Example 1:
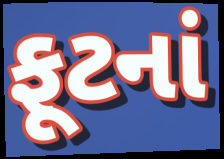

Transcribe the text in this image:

ફૂટનાં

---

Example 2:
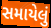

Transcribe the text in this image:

સમાયેલું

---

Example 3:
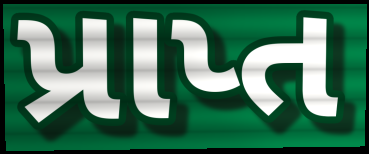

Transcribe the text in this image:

પ્રાપ્ત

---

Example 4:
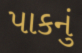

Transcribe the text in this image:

પાકનું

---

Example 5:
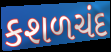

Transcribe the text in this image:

કશળચંદ